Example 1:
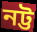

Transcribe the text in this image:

নট্ট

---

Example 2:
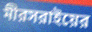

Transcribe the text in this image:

মীরসরাইয়ের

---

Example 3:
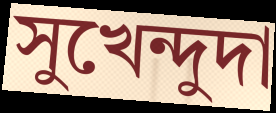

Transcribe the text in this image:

সুখেন্দুদা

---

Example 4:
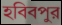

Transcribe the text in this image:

হবিবপুর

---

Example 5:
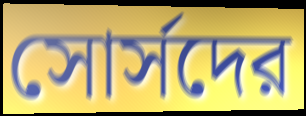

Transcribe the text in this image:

সোর্সদের